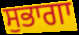
ਸੁਭਾਗਾ